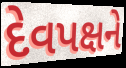
દેવપક્ષને